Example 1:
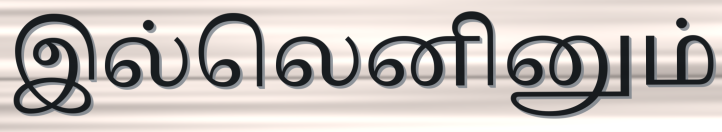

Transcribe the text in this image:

இல்லெனினும்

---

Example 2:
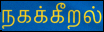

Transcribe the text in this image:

நகக்கீறல்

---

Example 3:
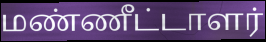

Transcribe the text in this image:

மண்ணீட்டாளர்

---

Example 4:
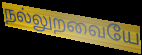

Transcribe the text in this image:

நல்லுறவையே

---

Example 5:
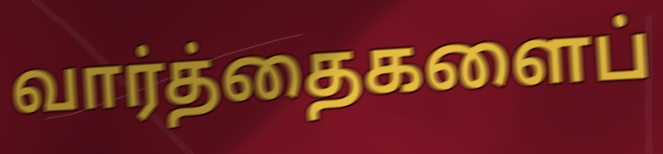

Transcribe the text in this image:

வார்த்தைகளைப்